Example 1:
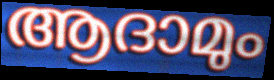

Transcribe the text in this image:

ആദാമും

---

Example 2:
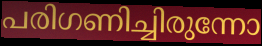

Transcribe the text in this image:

പരിഗണിച്ചിരുന്നോ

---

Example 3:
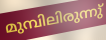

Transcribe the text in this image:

മുമ്പിലിരുന്നു്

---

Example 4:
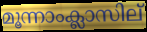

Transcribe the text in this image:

മൂന്നാംക്ലാസില്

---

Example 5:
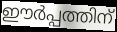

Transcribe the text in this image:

ഈർപ്പത്തിന്